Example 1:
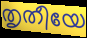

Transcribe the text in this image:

തൃതീയേ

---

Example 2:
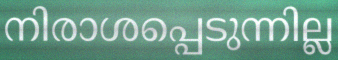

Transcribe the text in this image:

നിരാശപ്പെടുന്നില്ല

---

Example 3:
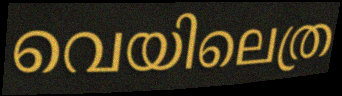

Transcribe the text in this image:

വെയിലെത്ര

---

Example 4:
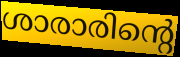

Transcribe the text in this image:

ശാരാരിന്റെ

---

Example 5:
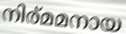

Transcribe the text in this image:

നിര്മമനായ